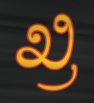
ಖ್ರಿ